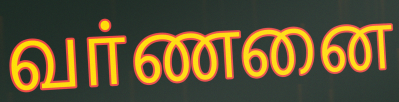
வர்ணனை